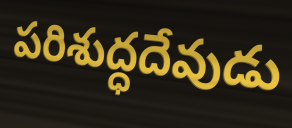
పరిశుద్ధదేవుడు